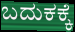
ಬದುಕಕ್ಕೆ